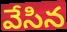
వేసిన